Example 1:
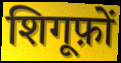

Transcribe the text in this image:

शिगूफ़ों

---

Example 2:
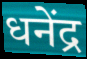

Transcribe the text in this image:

धनेंद्र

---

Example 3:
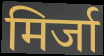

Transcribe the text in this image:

मिर्जा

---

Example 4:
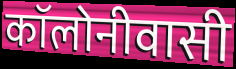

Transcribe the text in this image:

कॉलोनीवासी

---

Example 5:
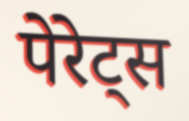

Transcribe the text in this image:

पेरेट्स